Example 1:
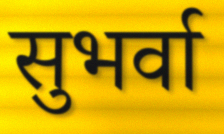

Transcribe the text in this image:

सुभर्वा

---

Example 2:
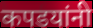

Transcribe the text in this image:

कपडयांनी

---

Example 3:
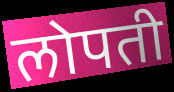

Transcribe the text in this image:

लोपती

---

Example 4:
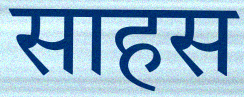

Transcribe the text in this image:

साहस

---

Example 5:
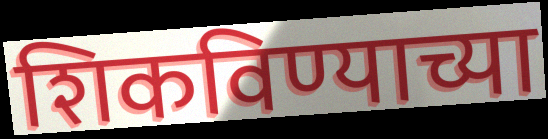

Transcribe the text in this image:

शिकविण्याच्या